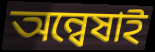
অন্বেষাই